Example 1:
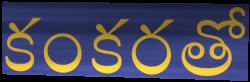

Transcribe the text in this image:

కంకరతో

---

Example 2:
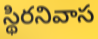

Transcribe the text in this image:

స్థిరనివాస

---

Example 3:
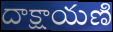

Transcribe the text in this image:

దాక్షాయణి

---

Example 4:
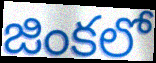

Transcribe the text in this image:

జింకలో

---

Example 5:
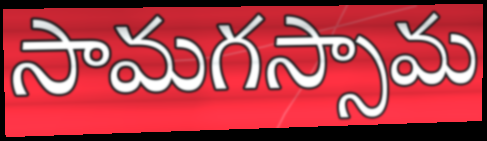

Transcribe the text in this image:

సామగస్సామ